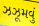
ઝઝૂમવું